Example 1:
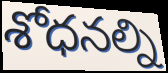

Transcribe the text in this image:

శోధనల్ని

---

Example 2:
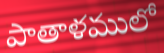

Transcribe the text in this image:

పాతాళములో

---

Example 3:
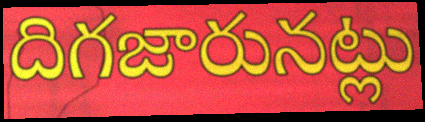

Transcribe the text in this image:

దిగజారునట్లు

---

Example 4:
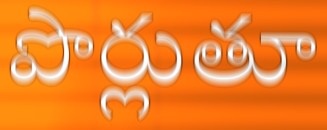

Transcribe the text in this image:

పొర్లుతూ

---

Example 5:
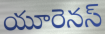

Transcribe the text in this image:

యూరెనస్